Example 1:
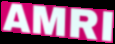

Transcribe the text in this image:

AMRI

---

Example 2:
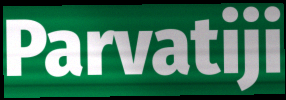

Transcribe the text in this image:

Parvatiji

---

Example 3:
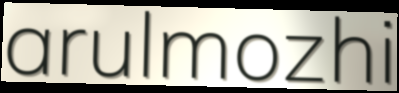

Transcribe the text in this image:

arulmozhi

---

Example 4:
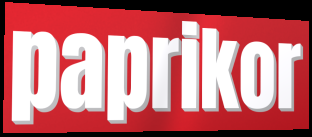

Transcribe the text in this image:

paprikor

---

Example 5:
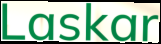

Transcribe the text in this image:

Laskar